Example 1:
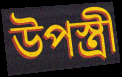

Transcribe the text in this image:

উপস্ত্রী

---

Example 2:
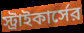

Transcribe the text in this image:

স্ট্রাইকার্সের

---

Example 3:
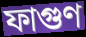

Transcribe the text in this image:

ফাগুণ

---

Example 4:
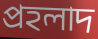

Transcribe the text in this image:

প্রহলাদ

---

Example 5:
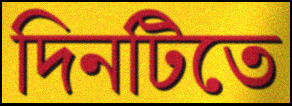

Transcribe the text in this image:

দিনটিতে